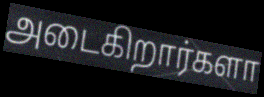
அடைகிறார்களா